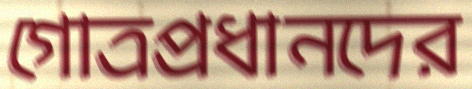
গোত্রপ্রধানদের